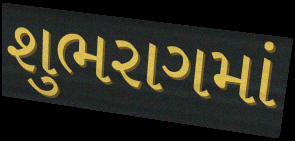
શુભરાગમાં